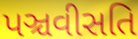
પઞ્ચવીસતિ